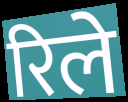
रिले